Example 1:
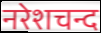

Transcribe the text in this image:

नरेशचन्द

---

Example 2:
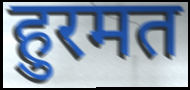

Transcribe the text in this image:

हुरमत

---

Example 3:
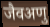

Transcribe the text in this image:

जैवअणु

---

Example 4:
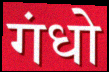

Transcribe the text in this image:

गंधो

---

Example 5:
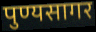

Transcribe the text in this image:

पुण्यसागर